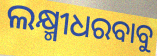
ଲକ୍ଷ୍ମୀଧରବାବୁ